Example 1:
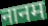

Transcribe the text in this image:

नानम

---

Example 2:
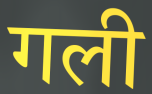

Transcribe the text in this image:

गली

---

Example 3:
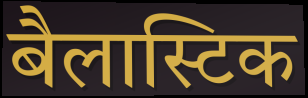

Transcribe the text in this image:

बैलास्टिक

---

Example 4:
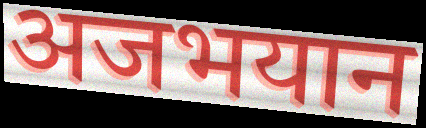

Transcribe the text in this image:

अजभयान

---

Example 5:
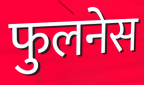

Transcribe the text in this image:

फुलनेस